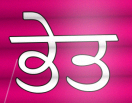
ਭੇਤ